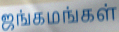
ஜங்கமங்கள்